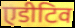
एडीटिव